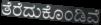
ತೆರೆದುಕೊಂಡಿವೆ